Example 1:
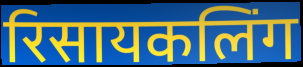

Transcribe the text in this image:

रिसायकलिंग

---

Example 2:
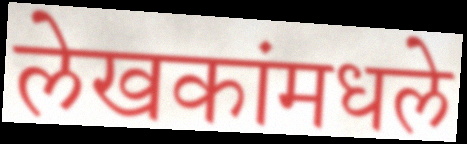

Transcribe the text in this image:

लेखकांमधले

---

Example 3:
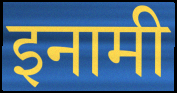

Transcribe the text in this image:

इनामी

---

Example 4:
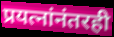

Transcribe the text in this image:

प्रयत्नांनंतरही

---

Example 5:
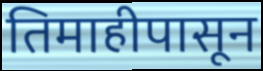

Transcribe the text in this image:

तिमाहीपासून